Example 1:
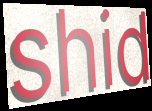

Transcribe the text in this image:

shid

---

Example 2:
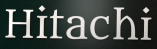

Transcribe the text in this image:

Hitachi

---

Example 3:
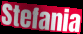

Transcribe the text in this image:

Stefania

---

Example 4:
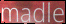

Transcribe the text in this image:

madle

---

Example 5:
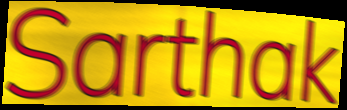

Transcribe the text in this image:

Sarthak